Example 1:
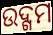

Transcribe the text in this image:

ଉଦ୍ଗମ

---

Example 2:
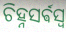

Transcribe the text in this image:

ଚିହ୍ନସର୍ଵସ୍ଵ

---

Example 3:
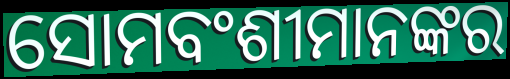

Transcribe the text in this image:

ସୋମବଂଶୀମାନଙ୍କର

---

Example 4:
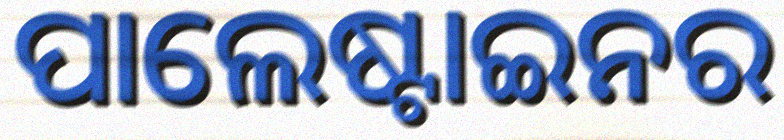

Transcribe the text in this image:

ପାଲେଷ୍ଟାଇନର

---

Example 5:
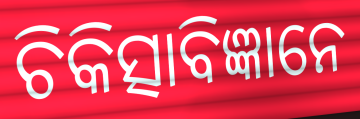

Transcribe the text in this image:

ଚିକିତ୍ସାବିଜ୍ଞାନେ